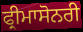
ਫ੍ਰੀਮਾਸੋਨਰੀ